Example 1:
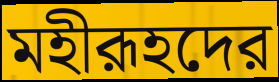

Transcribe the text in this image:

মহীরূহদের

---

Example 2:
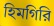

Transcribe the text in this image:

হিমগিরি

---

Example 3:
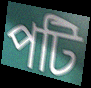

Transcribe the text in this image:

পটি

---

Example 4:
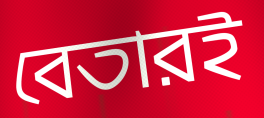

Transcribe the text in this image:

বেতারই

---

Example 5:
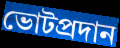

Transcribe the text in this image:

ভোটপ্রদান